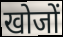
खोजों